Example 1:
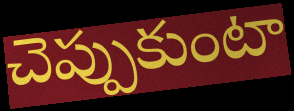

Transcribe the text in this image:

చెప్పుకుంటా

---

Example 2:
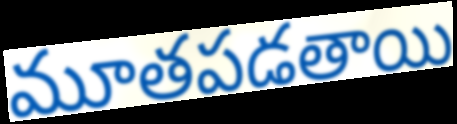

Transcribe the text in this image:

మూతపడతాయి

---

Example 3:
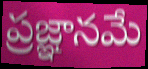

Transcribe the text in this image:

ప్రజ్ఞానమే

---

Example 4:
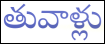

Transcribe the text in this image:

తువాళ్లు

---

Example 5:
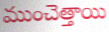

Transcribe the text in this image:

ముంచెత్తాయి